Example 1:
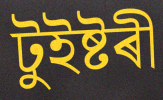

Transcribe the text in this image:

টুইষ্টৰী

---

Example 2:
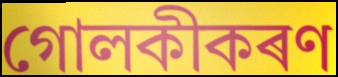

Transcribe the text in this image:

গোলকীকৰণ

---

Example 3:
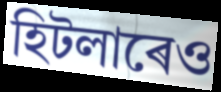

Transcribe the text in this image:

হিটলাৰেও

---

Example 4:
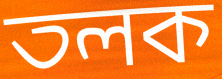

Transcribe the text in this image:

তলক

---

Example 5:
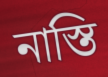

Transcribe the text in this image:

নাস্তি